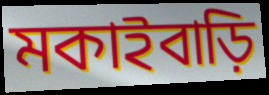
মকাইবাড়ি